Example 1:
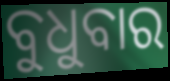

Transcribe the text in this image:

ବୁଧୁବାର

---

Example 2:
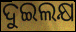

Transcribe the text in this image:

ଦୁଇଲକ୍ଷ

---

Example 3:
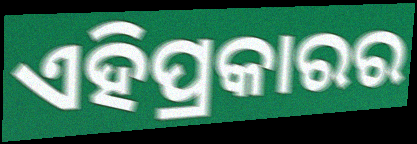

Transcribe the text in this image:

ଏହିପ୍ରକାରର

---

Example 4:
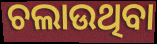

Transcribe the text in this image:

ଚଲାଉଥିବା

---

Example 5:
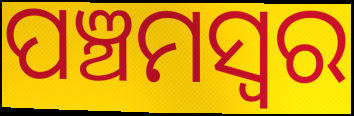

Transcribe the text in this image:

ପଞ୍ଚମସ୍ଵର